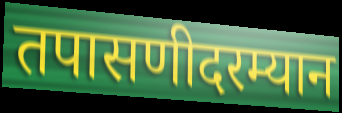
तपासणीदरम्यान